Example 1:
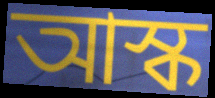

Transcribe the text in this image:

আস্ক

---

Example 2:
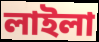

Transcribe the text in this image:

লাইলা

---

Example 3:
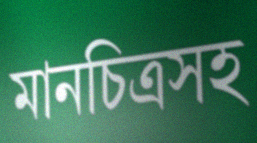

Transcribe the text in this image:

মানচিত্রসহ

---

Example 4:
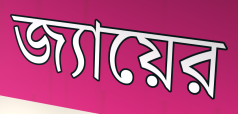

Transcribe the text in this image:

জ্যায়ের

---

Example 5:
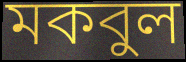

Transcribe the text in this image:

মকবুল